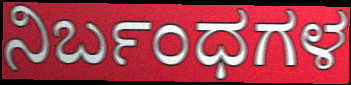
ನಿರ್ಬಂಧಗಳ